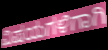
ವಿಷಯಗಳಿಗಾಗಿ